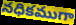
నధికముగా